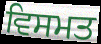
ਵਿਸਮਤ